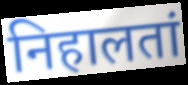
निहालतां